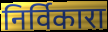
निर्विकारा